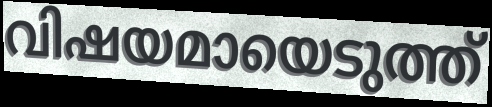
വിഷയമായെടുത്ത്